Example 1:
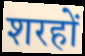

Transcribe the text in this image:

शरहों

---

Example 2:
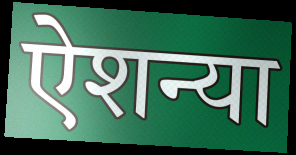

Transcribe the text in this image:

ऐशन्या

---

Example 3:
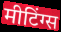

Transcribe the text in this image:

मीटिंग्स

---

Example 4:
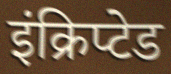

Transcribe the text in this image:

इंक्रिप्टेड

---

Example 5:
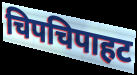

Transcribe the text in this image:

चिपचिपाहट